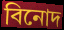
বিনোদ